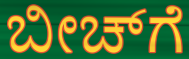
ಬೀಚ್‌ಗೆ